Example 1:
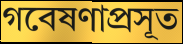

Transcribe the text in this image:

গবেষণাপ্রসূত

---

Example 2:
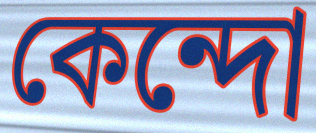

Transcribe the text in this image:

কেন্দো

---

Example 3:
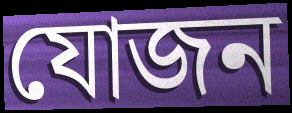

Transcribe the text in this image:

যোজন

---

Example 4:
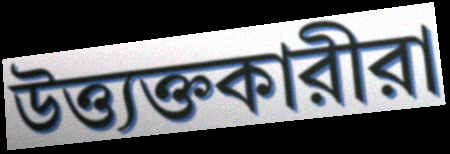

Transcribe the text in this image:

উত্ত্যক্তকারীরা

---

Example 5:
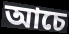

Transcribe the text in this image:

আচে